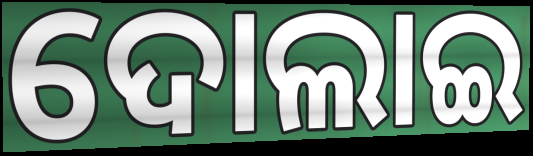
ଦୋଲାଇ